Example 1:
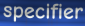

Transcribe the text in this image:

specifier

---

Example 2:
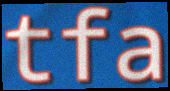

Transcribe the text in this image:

tfa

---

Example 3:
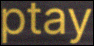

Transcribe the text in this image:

ptay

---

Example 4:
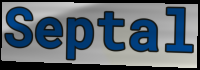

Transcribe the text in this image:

Septal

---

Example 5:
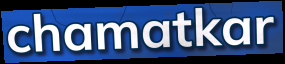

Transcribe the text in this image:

chamatkar